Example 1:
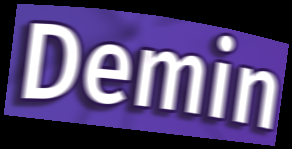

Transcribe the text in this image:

Demin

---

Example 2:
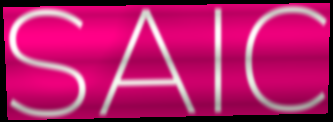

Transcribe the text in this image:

SAIC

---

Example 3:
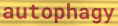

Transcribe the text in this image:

autophagy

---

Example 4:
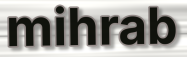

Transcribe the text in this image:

mihrab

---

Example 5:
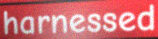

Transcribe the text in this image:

harnessed